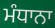
ਮੰਧਾਨਾ